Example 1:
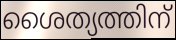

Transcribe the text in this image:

ശൈത്യത്തിന്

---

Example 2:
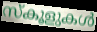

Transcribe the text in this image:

സ്കൂളുകൾ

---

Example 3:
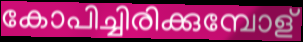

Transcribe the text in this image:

കോപിച്ചിരിക്കുമ്പോള്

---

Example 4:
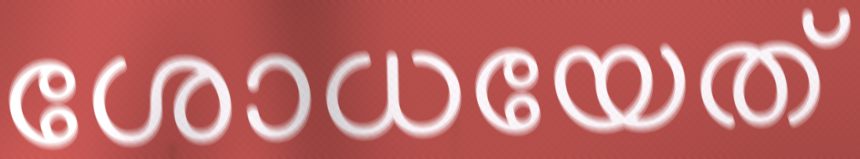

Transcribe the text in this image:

ശോധയേത്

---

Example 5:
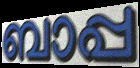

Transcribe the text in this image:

ബാപ്പ